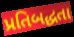
પ્રતિબદ્ધતા